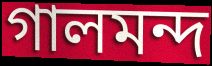
গালমন্দ